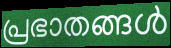
പ്രഭാതങ്ങൾ